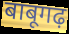
बाबूगढ़